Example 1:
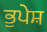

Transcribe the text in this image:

ਭੁਪੇਸ਼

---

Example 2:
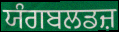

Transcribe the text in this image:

ਯੰਗਬਲਡਜ਼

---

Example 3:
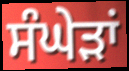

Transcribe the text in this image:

ਸੰਘੇੜਾਂ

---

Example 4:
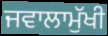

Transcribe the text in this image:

ਜਵਾਲਾਮੁੱਖੀ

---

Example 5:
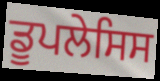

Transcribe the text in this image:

ਡੂਪਲੇਸਿਸ